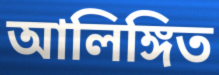
আলিঙ্গিত